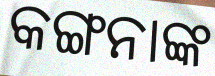
କଙ୍ଗନାଙ୍କ